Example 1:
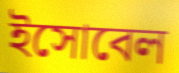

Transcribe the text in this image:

ইসোবেল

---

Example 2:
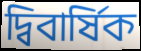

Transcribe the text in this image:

দ্বিবার্ষিক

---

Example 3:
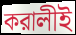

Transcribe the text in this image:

করালীই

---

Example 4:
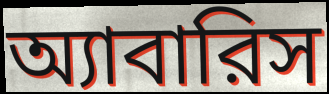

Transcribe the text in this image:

অ্যাবারিস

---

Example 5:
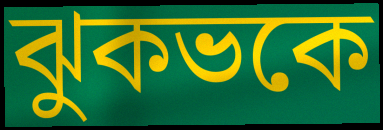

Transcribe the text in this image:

ঝুকভকে